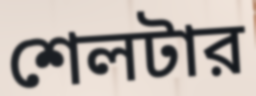
শেলটার